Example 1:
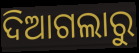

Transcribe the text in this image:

ଦିଆଗଲାରୁ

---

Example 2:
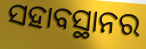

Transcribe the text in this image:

ସହାବସ୍ଥାନର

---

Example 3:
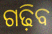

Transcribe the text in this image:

ଗଢ଼ିବ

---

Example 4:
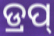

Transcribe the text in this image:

ଡ୍ରପ୍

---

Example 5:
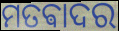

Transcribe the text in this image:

ମତଵାଦର